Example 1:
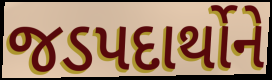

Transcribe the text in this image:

જડપદાર્થોને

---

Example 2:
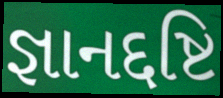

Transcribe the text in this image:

જ્ઞાનદ્દષ્ટિ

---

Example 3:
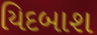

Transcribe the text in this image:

યિદબાશ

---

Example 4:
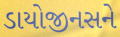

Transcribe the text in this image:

ડાયોજીનસને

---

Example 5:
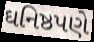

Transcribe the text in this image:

ઘનિષ્ઠપણે